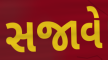
સજાવે